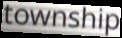
township